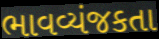
ભાવવ્યંજકતા